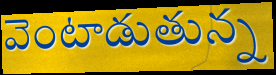
వెంటాడుతున్న